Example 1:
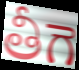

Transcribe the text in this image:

తీగె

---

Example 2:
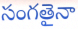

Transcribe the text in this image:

సంగతైనా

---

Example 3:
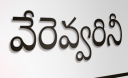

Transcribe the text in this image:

వేరెవ్వరినీ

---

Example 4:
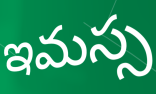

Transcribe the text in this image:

ఇమస్స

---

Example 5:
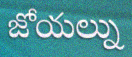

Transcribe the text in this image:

జోయల్ను